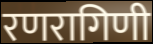
रणरागिणी